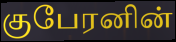
குபேரனின்